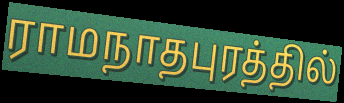
ராமநாதபுரத்தில்